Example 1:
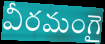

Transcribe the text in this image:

వీరమంగై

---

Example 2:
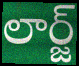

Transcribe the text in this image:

లార్జ్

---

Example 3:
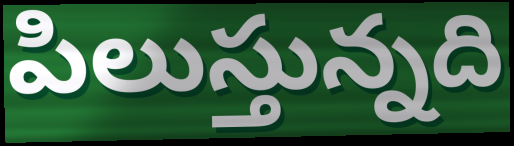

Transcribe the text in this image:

పిలుస్తున్నది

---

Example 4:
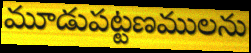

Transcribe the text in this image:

మూడుపట్టణములను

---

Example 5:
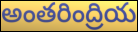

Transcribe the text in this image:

అంతరింద్రియ